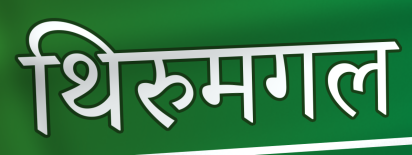
थिरुमगल